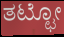
ತಟ್ಟೋ